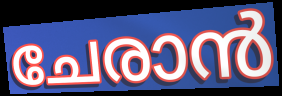
ചേരാൻ